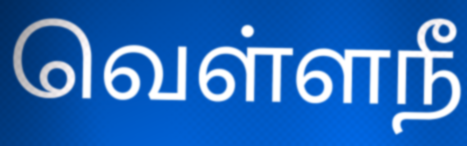
வெள்ளநீ